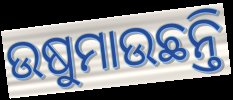
ଉଷୁମାଉଛନ୍ତି